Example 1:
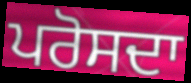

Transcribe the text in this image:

ਪਰੋਸਦਾ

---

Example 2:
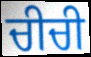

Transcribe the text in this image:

ਚੀਚੀ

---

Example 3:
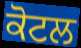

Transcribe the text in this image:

ਕੋਟਲ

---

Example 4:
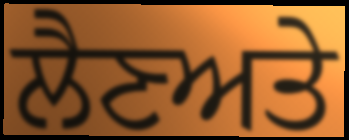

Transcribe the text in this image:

ਲੈਣਅਤੇ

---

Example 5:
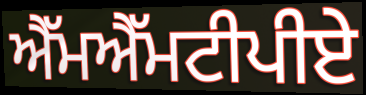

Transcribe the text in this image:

ਐੱਮਐੱਮਟੀਪੀਏ